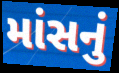
માંસનું